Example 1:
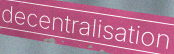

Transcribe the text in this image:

decentralisation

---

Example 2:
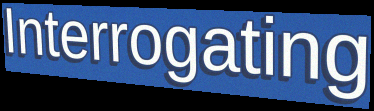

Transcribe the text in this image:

Interrogating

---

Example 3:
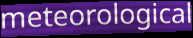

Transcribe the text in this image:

meteorological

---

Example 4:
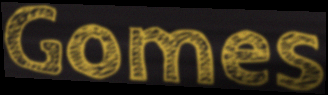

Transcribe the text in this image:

Gomes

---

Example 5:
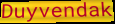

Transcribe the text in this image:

Duyvendak